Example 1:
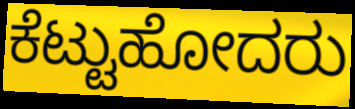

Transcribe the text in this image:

ಕೆಟ್ಟುಹೋದರು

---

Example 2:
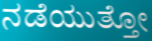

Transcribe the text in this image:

ನಡೆಯುತ್ತೋ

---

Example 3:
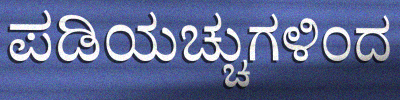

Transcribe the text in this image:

ಪಡಿಯಚ್ಚುಗಳಿಂದ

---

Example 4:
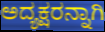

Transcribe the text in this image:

ಅದ್ಯಕ್ಷರನ್ನಾಗಿ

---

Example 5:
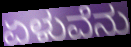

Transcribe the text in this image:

ಏಳುವೆನು